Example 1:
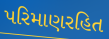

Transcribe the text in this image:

પરિમાણરહિત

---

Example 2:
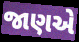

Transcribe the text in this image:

જાણએ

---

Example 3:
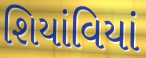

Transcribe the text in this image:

શિયાંવિયાં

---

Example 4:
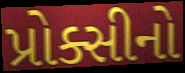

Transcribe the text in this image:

પ્રોક્સીનો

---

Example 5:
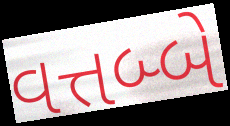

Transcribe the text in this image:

વત્તબ્બે